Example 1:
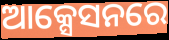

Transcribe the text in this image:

ଆକ୍ସେସନରେ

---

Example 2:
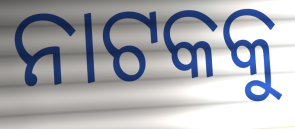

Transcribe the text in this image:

ନାଟକକୁ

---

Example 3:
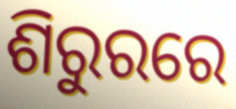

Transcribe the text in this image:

ଶିରୁରରେ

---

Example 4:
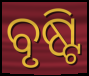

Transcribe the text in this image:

ବୃଷ୍ଟି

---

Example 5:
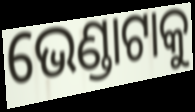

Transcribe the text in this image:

ଭେଣ୍ଡାଟାକୁ